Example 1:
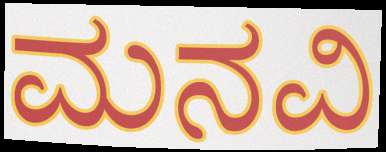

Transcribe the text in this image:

ಮನವಿ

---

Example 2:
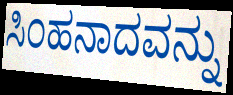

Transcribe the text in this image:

ಸಿಂಹನಾದವನ್ನು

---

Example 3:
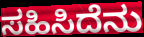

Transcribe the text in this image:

ಸಹಿಸಿದೆನು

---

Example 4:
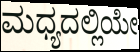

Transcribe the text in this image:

ಮಧ್ಯದಲ್ಲಿಯೇ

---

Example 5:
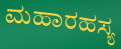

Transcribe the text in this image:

ಮಹಾರಹಸ್ಯ